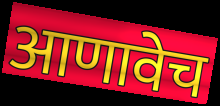
आणावेच